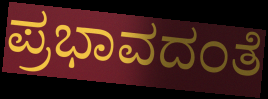
ಪ್ರಭಾವದಂತೆ